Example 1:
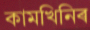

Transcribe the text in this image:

কামখিনিৰ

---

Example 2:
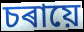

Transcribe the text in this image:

চৰায়ে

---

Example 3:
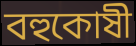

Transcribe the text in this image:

বহুকোষী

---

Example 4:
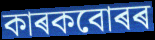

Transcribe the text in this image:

কাৰকবোৰৰ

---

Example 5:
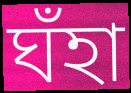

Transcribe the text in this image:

ঘঁহা